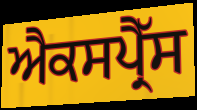
ਐਕਸਪ੍ਰੈੱਸ